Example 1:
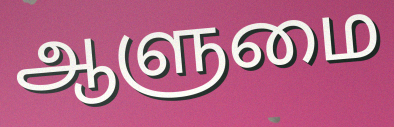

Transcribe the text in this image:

ஆளுமை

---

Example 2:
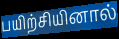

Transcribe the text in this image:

பயிற்சியினால்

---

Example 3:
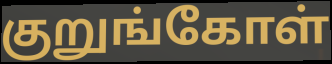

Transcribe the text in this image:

குறுங்கோள்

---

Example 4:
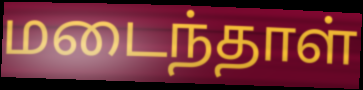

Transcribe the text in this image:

மடைந்தாள்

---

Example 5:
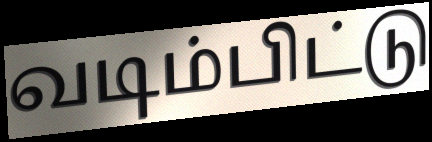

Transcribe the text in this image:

வடிம்பிட்டு